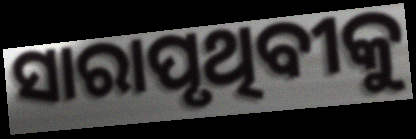
ସାରାପୃଥିବୀକୁ